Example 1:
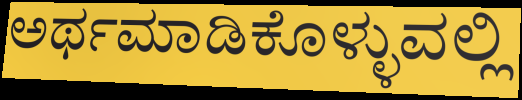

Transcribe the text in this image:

ಅರ್ಥಮಾಡಿಕೊಳ್ಳುವಲ್ಲಿ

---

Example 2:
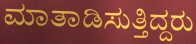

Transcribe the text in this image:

ಮಾತಾಡಿಸುತ್ತಿದ್ದರು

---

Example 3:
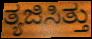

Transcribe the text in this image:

ತ್ಯಜಿಸಿತ್ತು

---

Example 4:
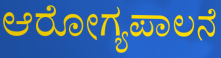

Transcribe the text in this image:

ಆರೋಗ್ಯಪಾಲನೆ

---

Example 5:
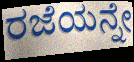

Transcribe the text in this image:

ರಜೆಯನ್ನೇ